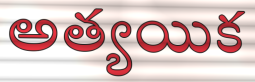
అత్యయిక